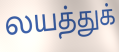
லயத்துக்